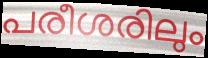
പരീശരിലും